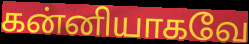
கன்னியாகவே